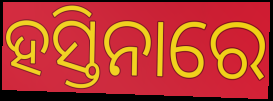
ହସ୍ତିନାରେ